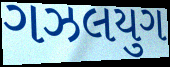
ગઝલયુગ